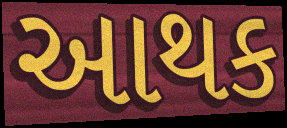
આથક